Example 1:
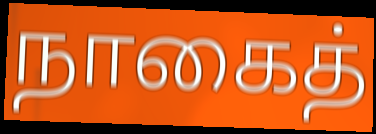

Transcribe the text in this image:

நாகைத்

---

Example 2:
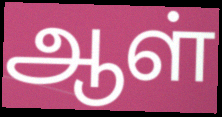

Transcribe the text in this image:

ஆள்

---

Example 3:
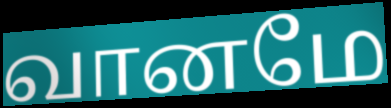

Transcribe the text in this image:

வானமே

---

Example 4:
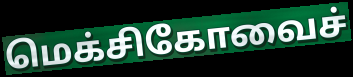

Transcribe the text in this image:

மெக்சிகோவைச்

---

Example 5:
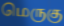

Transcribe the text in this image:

மெருகு